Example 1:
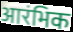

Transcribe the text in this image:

आरंभिक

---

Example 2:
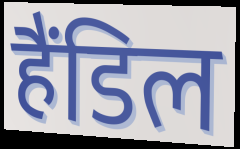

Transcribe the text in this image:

हैंडिल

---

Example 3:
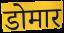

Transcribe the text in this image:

डोमार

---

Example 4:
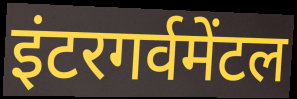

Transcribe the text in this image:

इंटरगर्वमेंटल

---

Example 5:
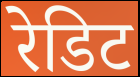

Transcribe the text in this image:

रेडिट